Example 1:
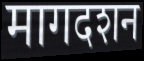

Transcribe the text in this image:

मागदशन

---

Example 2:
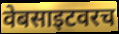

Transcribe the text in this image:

वेबसाइटवरच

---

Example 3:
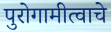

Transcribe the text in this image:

पुरोगामीत्वाचे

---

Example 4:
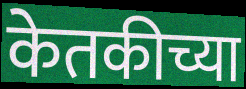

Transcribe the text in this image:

केतकीच्या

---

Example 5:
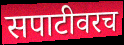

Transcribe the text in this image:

सपाटीवरच